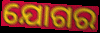
ଯୋଗର